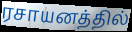
ரசாயனத்தில்